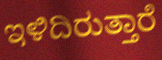
ಇಳಿದಿರುತ್ತಾರೆ